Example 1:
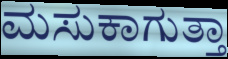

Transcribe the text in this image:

ಮಸುಕಾಗುತ್ತಾ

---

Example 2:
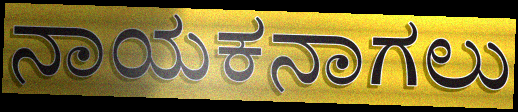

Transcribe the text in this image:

ನಾಯಕನಾಗಲು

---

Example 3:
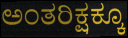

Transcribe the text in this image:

ಅಂತರಿಕ್ಷಕ್ಕೂ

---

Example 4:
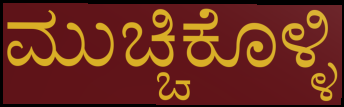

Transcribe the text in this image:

ಮುಚ್ಚಿಕೊಳ್ಳಿ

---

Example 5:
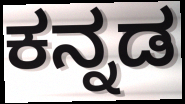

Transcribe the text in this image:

ಕನ್ನಡ